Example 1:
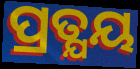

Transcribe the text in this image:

ପ୍ରତ୍ଯୟ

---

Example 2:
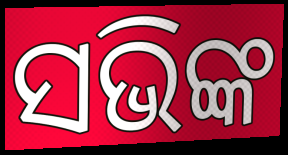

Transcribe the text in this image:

ସଭିଙ୍କ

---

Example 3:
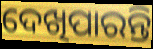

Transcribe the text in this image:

ଦେଖିପାରନ୍ତି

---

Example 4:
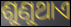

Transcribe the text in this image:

ଶୁଣୁଥାଏ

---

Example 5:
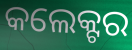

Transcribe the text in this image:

କଲେକ୍ଟର